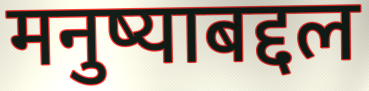
मनुष्याबद्दल